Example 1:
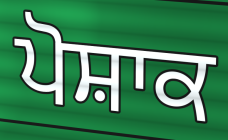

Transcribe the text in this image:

ਪੋਸ਼ਾਕ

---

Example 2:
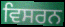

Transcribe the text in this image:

ਵਿਸਰਨ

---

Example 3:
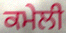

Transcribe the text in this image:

ਕਮੇਲੀ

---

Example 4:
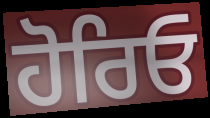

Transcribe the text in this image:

ਹੋਰਿਓ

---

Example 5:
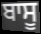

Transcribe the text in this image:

ਬਾਸੂ